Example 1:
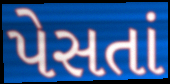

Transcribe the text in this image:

પેસતાં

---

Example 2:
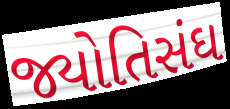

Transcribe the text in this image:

જ્યોતિસંઘ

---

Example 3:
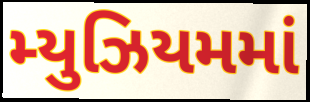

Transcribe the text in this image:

મ્યુઝિયમમાં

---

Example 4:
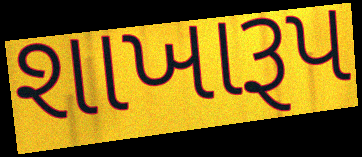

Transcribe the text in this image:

શાખારૂપ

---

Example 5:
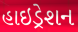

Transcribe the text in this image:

હાઇડ્રેશન